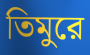
তিমুরে